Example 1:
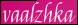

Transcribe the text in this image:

vaalzhka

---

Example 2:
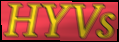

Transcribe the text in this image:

HYVs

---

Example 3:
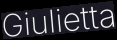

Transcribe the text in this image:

Giulietta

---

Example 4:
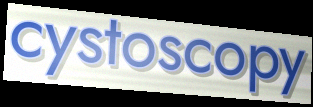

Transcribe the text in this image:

cystoscopy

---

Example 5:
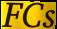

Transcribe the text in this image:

FCs